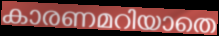
കാരണമറിയാതെ